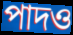
পাদও